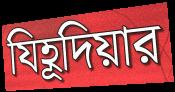
যিহূদিয়ার